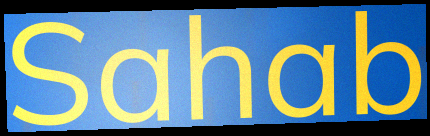
Sahab